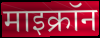
माइक्रॉन